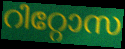
റിറ്റോസ